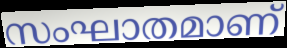
സംഘാതമാണ്